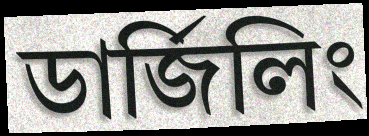
ডার্জিলিং